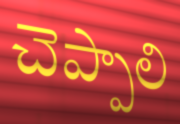
చెప్పాలి